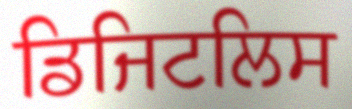
ਡਿਜਿਟਲਿਸ